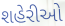
શહેરીઓ